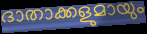
ദാതാക്കളുമായും